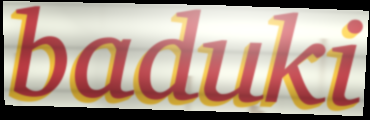
baduki